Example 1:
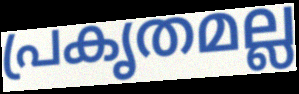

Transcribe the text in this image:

പ്രകൃതമല്ല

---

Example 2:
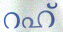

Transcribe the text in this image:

റഹ്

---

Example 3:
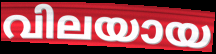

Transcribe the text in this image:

വിലയായ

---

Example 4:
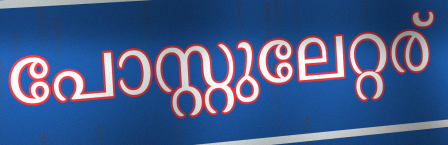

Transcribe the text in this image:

പോസ്റ്റുലേറ്റര്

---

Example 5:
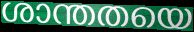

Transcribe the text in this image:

ശാന്തതയെ